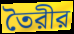
তৈরীর